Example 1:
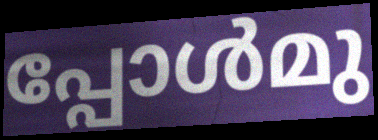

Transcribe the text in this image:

പ്പോൾമു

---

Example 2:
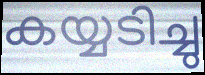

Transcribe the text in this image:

കയ്യടിച്ചു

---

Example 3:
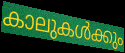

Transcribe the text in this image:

കാലുകൾക്കും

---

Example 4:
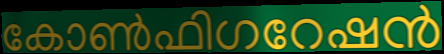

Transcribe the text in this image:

കോൺഫിഗറേഷൻ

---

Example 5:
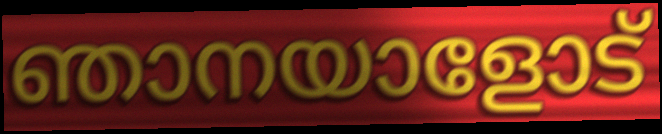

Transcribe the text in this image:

ഞാനയാളോട്